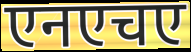
एनएचए